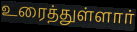
உரைத்துள்ளார்